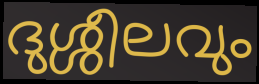
ദുശ്ശീലവും